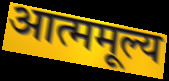
आत्ममूल्य